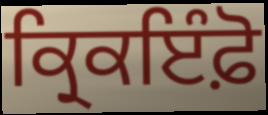
ਕ੍ਰਿਕਇੰਫ਼ੋ